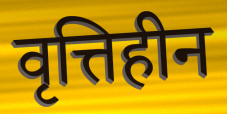
वृत्तिहीन